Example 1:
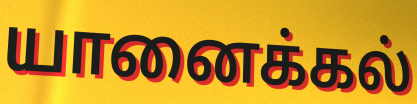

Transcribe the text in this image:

யானைக்கல்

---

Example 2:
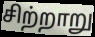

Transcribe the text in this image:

சிற்றாறு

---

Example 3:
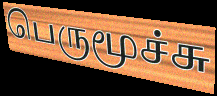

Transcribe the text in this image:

பெருமூச்சு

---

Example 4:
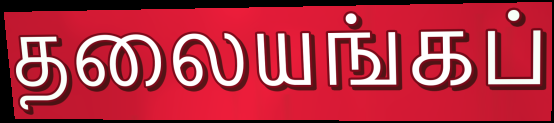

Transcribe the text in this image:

தலையங்கப்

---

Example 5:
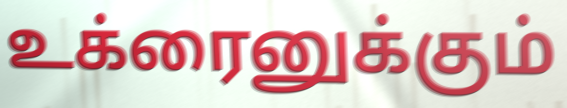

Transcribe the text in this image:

உக்ரைனுக்கும்